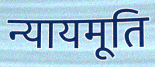
न्यायमूति